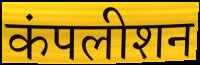
कंपलीशन